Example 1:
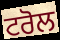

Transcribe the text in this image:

ਟਰੋਲ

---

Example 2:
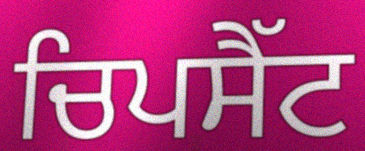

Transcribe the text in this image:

ਚਿਪਸੈੱਟ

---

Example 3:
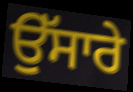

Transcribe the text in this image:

ਉੱਸਾਰੇ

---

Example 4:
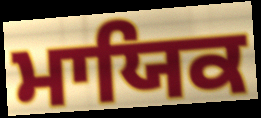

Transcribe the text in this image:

ਮਾਯਿਕ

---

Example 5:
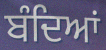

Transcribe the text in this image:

ਬੰਦਿਆਂ